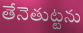
తేనెతుట్టను